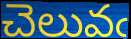
చెలువఁ